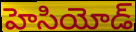
హెసియోడ్